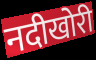
नदीखोरी